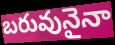
బరువునైనా